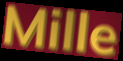
Mille